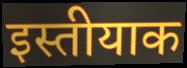
इस्तीयाक